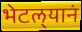
भेटल्यानं